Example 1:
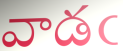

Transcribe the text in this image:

వాడఁ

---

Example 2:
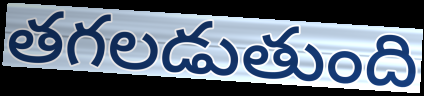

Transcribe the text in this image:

తగలడుతుంది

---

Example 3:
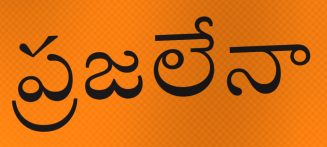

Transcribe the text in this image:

ప్రజలేనా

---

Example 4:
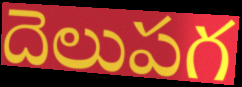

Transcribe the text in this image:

దెలుపగ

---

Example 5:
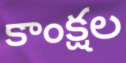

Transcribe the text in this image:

కాంక్షల